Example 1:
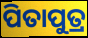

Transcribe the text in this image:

ପିତାପୁତ୍ର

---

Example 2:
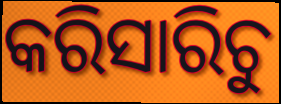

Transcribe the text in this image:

କରିସାରିଚୁ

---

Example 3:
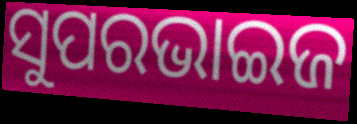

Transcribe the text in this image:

ସୁପରଭାଇଜ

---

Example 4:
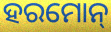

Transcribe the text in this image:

ହରମୋନ୍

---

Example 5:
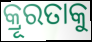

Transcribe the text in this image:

କ୍ରୂରତାକୁ